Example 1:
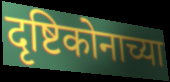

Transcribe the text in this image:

दृष्टिकोनाच्या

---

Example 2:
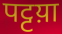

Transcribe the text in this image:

पट्टय़ा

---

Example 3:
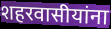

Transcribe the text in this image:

शहरवासीयांना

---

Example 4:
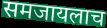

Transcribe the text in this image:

समजायलाच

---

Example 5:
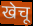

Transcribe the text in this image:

खेचू